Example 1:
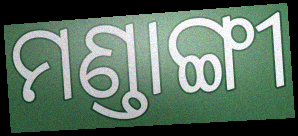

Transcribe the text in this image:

ମଣ୍ଡାଙ୍ଗୀ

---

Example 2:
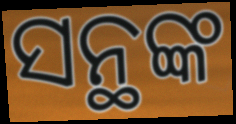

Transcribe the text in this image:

ସନ୍ଥଙ୍କ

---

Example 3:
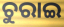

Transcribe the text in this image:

ଚୁରାଇ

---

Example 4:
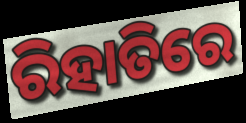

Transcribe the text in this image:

ରିହାତିରେ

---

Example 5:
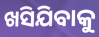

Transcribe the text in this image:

ଖସିଯିବାକୁ